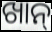
ଖାନ୍